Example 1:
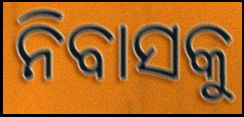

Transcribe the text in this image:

ନିବାସକୁ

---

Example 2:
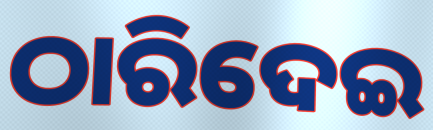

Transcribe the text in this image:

ଠାରିଦେଇ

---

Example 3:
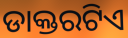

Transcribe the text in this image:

ଡାକ୍ତରଟିଏ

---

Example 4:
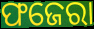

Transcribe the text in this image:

ଫଜେରା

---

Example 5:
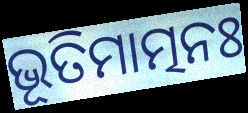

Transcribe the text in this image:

ଭୂତିମାତ୍ମନଃ